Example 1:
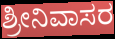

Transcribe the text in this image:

ಶ್ರೀನಿವಾಸರ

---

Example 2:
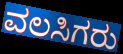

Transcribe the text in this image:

ವಲಸಿಗರು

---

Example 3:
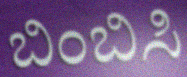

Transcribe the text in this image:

ಬಿಂಬಿಸಿ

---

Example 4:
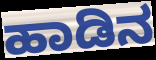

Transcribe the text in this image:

ಹಾಡಿನ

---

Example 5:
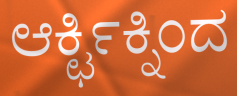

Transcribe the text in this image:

ಆರ್ಕ್ಟಿಕ್ನಿಂದ